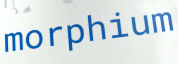
morphium